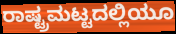
ರಾಷ್ಟ್ರಮಟ್ಟದಲ್ಲಿಯೂ